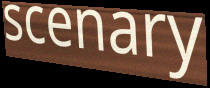
scenary